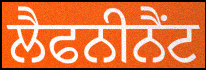
ਲੈਫਨੀਨੈਂਟ